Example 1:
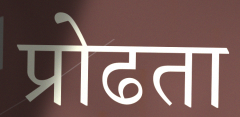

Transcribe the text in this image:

प्रोढता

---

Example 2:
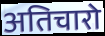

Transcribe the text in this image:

अतिचारो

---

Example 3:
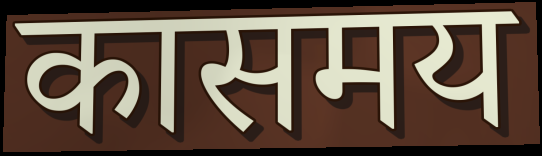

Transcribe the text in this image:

कासमय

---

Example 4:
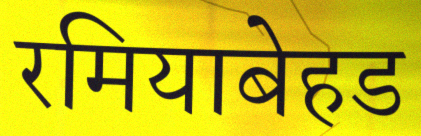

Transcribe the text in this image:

रमियाबेहड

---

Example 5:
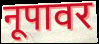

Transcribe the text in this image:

नूपावर